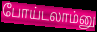
போய்டலாம்னு